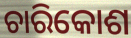
ଚାରିକୋଶ